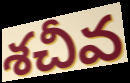
శచీవ